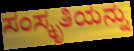
ಸಂಸ್ಕೃತಿಯನ್ನು